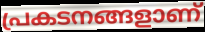
പ്രകടനങ്ങളാണ്